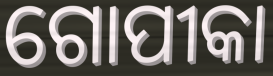
ଗୋପୀକା